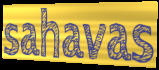
sahavas